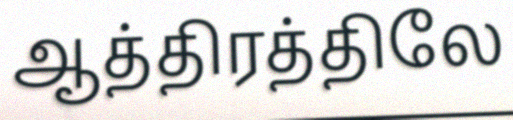
ஆத்திரத்திலே